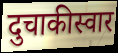
दुचाकीस्वार